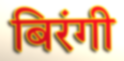
बिरंगी